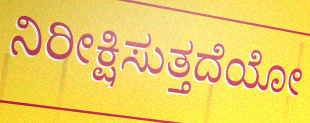
ನಿರೀಕ್ಷಿಸುತ್ತದೆಯೋ